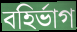
বহির্ভাগ